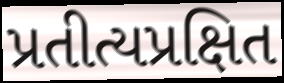
પ્રતીત્યપ્રક્ષિત